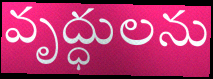
వృద్ధులను